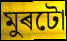
মুৰটো